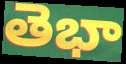
తెభా